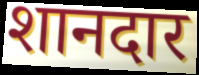
शानदार